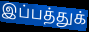
இப்பத்துக்